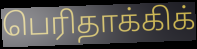
பெரிதாக்கிக்